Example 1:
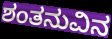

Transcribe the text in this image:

ಶಂತನುವಿನ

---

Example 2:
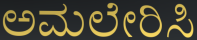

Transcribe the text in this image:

ಅಮಲೇರಿಸಿ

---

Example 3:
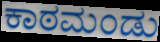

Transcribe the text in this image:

ಕಾಠಮಂಡು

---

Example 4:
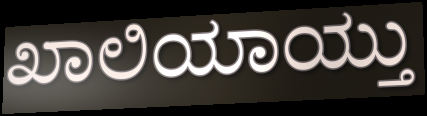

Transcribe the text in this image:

ಖಾಲಿಯಾಯ್ತು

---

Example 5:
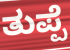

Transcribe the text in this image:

ತುಪ್ಪೆ